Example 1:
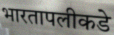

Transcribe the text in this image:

भारतापलीकडे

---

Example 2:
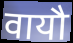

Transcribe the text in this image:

वायौ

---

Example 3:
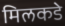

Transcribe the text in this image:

मिलकडे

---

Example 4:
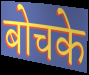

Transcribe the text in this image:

बोचके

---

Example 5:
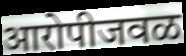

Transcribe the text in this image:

आरोपीजवळ